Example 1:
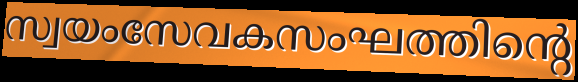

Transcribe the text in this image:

സ്വയംസേവകസംഘത്തിന്റെ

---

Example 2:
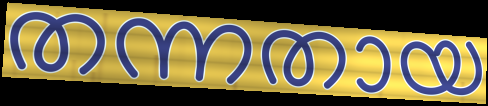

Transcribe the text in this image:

തന്നതായ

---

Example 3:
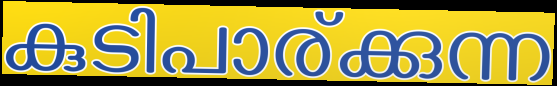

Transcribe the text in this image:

കുടിപാര്ക്കുന്ന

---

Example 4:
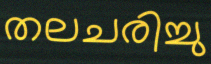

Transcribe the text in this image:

തലചരിച്ചു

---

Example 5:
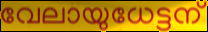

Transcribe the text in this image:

വേലായുധേട്ടന്